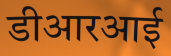
डीआरआई